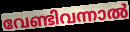
വേണ്ടിവന്നാൽ